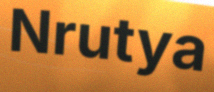
Nrutya